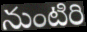
నుంటిరి